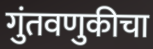
गुंतवणुकीचा